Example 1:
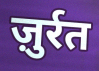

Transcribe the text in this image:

ज़ुर्रत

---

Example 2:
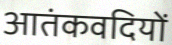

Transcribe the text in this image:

आतंकवदियों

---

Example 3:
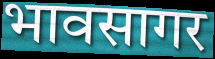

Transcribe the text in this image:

भावसागर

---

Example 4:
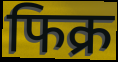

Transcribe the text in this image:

फिक्र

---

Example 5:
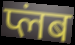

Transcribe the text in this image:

प्लंब